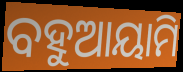
ବହୁଆୟାମି